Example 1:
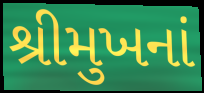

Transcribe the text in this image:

શ્રીમુખનાં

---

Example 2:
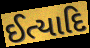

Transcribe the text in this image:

ઈત્યાદિ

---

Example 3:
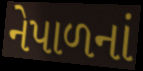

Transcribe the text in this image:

નેપાળનાં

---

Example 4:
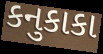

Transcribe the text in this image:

કનુકાકા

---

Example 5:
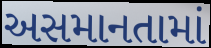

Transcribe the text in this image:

અસમાનતામાં